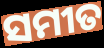
ସମୀତ